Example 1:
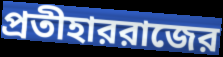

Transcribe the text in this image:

প্রতীহাররাজের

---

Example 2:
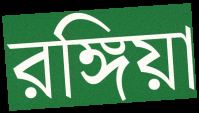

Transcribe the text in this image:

রঙ্গিয়া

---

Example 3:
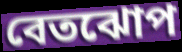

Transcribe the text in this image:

বেতঝোপ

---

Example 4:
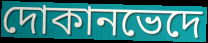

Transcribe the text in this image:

দোকানভেদে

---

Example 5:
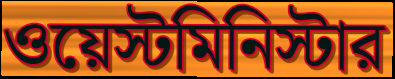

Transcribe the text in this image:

ওয়েস্টমিনিস্টার